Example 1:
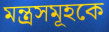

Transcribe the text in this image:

মন্ত্রসমূহকে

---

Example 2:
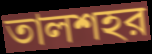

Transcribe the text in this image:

তালশহর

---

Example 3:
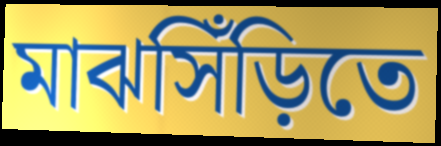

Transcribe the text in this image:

মাঝসিঁড়িতে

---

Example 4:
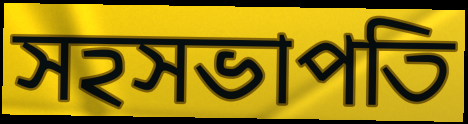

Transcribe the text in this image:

সহসভাপতি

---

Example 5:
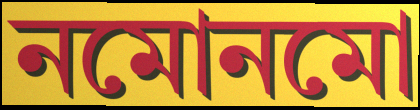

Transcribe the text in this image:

নমোনমো